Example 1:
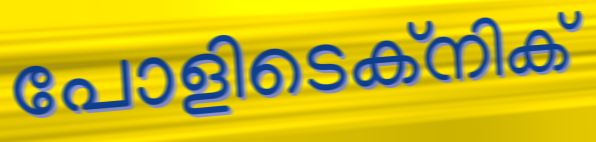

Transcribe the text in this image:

പോളിടെക്നിക്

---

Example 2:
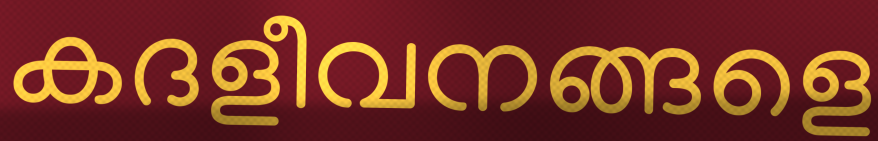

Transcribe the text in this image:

കദളീവനങ്ങളെ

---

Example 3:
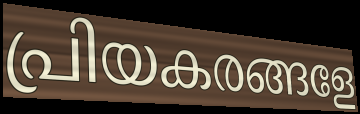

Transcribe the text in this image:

പ്രിയകരങ്ങളേ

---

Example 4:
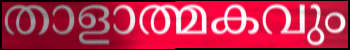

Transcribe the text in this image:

താളാത്മകവും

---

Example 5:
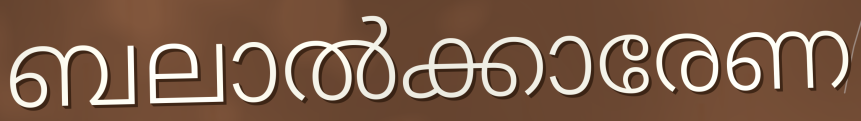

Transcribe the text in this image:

ബലാൽക്കാരേണ